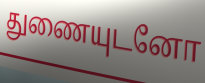
துணையுடனோ